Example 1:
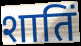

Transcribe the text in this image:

शातिं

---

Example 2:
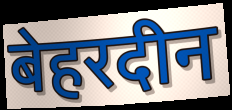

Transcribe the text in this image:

बेहरदीन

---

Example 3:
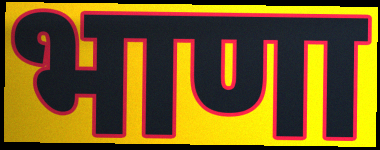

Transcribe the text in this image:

भाणा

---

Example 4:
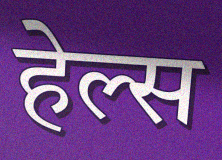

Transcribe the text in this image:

हेल्स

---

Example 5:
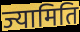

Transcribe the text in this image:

ज्यामिति